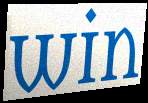
win